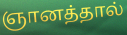
ஞானத்தால்